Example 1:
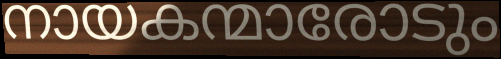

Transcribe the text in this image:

നായകന്മാരോടും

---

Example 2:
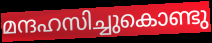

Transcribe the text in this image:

മന്ദഹസിച്ചുകൊണ്ടു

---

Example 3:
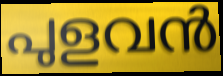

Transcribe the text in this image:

പുളവൻ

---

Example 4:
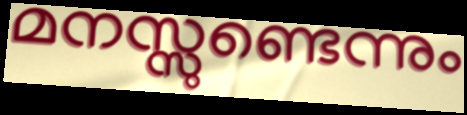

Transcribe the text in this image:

മനസ്സുണ്ടെന്നും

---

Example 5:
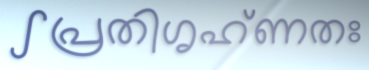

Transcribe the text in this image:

ഽപ്രതിഗൃഹ്ണതഃ